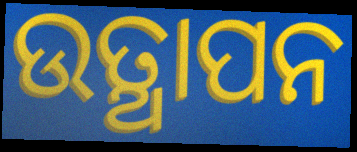
ଉତ୍ଥାପନ